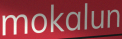
mokalun